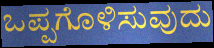
ಒಪ್ಪಗೊಳಿಸುವುದು